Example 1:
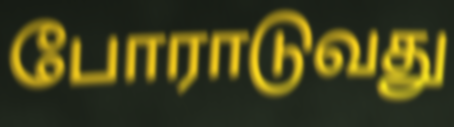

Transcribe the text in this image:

போராடுவது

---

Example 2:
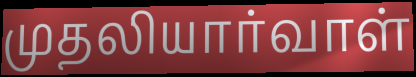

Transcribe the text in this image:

முதலியார்வாள்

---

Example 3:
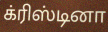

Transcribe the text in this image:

க்ரிஸ்டினா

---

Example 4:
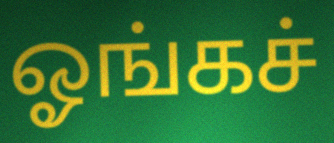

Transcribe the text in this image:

ஓங்கச்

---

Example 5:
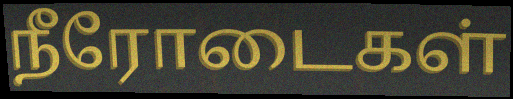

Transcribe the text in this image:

நீரோடைகள்